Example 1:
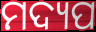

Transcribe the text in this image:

ମଦ୍ୟପ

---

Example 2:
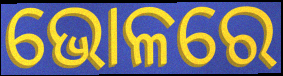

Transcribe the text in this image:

ଭୋଳରେ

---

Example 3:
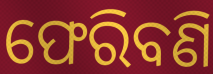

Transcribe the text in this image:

ଫେରିବଣି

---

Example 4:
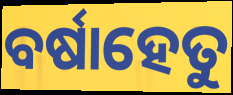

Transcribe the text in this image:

ବର୍ଷାହେତୁ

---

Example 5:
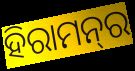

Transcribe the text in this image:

ହିରାମନ୍‍ର